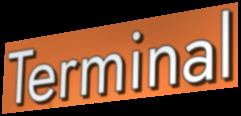
Terminal